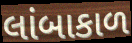
લાંબાકાળ